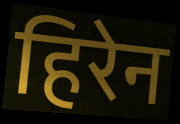
हिरेन